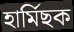
হাৰ্মিছক